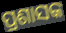
ପ୍ରଶାସକ